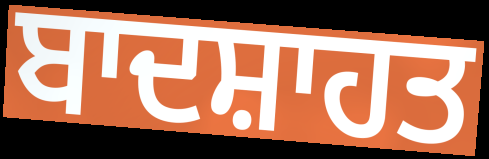
ਬਾਦਸ਼ਾਹਤ